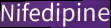
Nifedipine